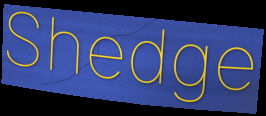
Shedge